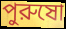
পুৰুষো